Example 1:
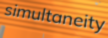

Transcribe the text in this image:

simultaneity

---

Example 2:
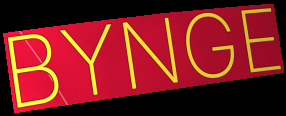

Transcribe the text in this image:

BYNGE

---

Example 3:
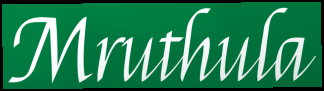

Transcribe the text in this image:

Mruthula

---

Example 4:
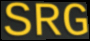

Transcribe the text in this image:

SRG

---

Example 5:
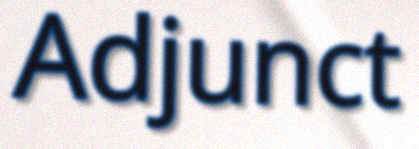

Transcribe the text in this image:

Adjunct